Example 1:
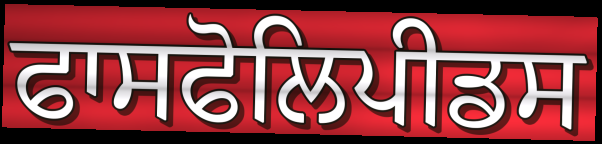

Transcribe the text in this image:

ਫਾਸਫੋਲਿਪੀਡਸ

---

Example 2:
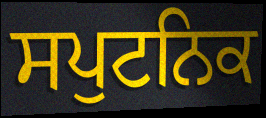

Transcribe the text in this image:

ਸਪੁਟਨਿਕ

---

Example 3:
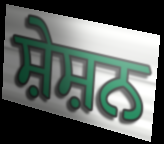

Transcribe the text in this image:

ਸ਼ੇਸ਼ਨ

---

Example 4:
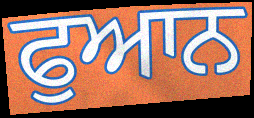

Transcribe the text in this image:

ਫੁਆਨ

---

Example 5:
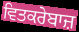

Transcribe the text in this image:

ਵਿਤਕਰੇਬਾਜ਼